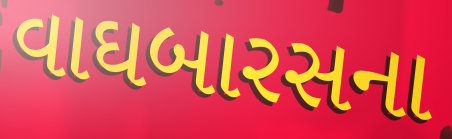
વાઘબારસના